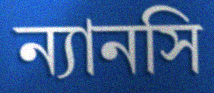
ন্যানসি